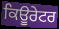
ਕਿਊਰੇਟਰ